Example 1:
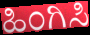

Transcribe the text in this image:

ಹಿಂಗಿಸಿ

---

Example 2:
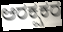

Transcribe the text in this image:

ಆರಕ್ಷಕರ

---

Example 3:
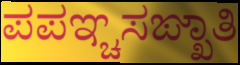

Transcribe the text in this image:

ಪಪಞ್ಚಸಙ್ಖಾತಿ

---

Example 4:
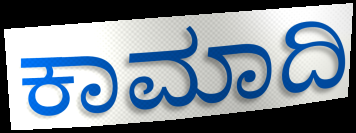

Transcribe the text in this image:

ಕಾಮಾದಿ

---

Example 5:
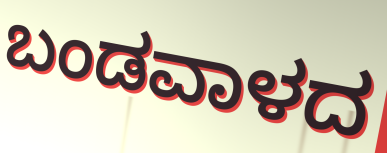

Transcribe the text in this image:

ಬಂಡವಾಳದ